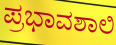
ಪ್ರಭಾವಶಾಲಿ